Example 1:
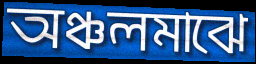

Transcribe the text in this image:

অঞ্চলমাঝে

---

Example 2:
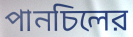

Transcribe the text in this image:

পানচিলের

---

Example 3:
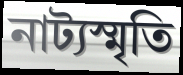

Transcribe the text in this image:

নাট্যস্মৃতি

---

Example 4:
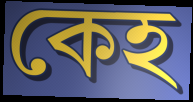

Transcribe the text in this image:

কেহ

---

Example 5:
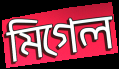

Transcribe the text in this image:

মিগেল